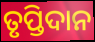
ତୃପ୍ତିଦାନ